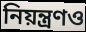
নিয়ন্ত্রণও